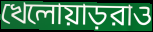
খেলোয়াড়রাও